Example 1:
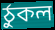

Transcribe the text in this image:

ঠুকল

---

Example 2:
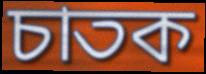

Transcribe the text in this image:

চাতক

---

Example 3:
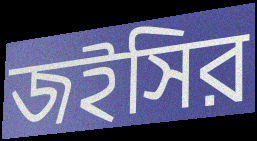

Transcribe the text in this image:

জইসির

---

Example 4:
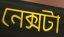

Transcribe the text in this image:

নেক্সটা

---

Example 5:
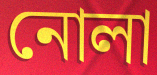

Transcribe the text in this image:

নোলা